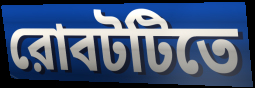
রোবটটিতে